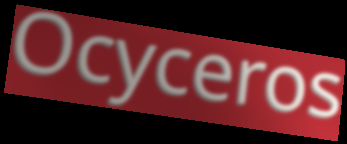
Ocyceros